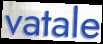
vatale